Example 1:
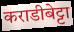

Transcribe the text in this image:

कराडीबेट्टा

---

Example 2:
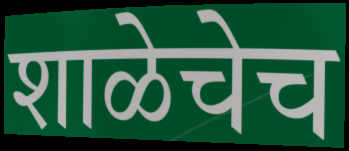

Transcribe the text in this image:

शाळेचेच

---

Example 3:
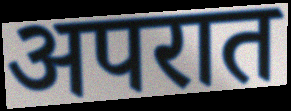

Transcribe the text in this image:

अपरात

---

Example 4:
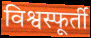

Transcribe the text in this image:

विश्वस्फूर्ती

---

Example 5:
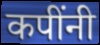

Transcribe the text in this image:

कपींनी